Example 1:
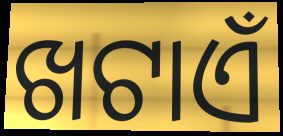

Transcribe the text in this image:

ଖଟାଏଁ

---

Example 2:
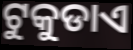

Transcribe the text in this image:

ଟୁକୁଡାଏ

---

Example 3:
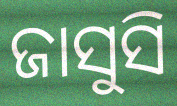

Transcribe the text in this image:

ଜାସୁସି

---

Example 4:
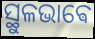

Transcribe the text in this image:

ସ୍ଥୁଳଭାଵେ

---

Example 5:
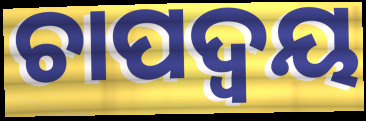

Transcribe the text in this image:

ଚାପଦ୍ଵୟ